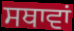
ਸਥਾਵਾਂ